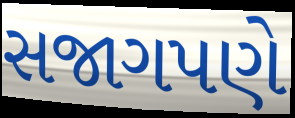
સજાગપણે